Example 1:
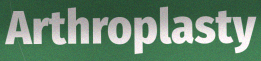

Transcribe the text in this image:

Arthroplasty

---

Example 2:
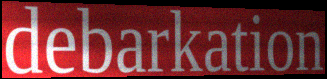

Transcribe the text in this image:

debarkation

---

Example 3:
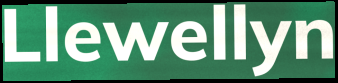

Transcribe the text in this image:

Llewellyn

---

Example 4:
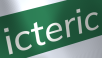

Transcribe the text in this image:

icteric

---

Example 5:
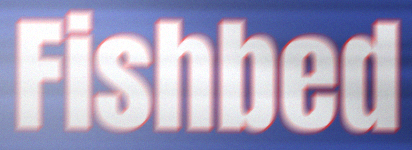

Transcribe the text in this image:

Fishbed